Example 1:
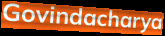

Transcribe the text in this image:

Govindacharya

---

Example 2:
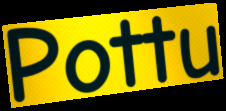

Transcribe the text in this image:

Pottu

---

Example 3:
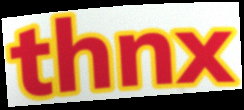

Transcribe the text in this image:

thnx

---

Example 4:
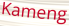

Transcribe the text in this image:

Kameng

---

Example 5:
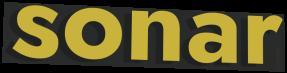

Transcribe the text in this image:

sonar